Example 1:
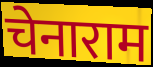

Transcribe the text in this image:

चेनाराम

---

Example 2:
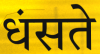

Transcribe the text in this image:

धंसते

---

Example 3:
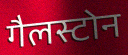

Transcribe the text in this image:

गैलस्टोन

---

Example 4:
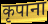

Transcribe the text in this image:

कृपाना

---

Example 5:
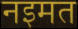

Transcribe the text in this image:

नइमत